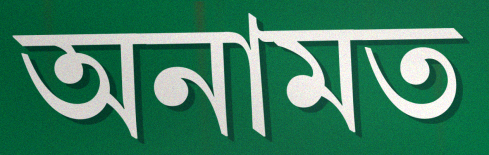
অনামত